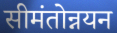
सीमंतोन्नयन